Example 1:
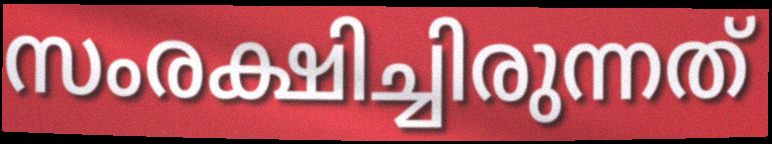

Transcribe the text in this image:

സംരക്ഷിച്ചിരുന്നത്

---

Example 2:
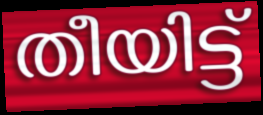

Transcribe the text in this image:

തീയിട്ട്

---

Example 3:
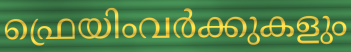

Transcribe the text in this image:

ഫ്രെയിംവർക്കുകളും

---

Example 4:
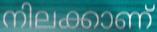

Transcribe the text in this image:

നിലക്കാണ്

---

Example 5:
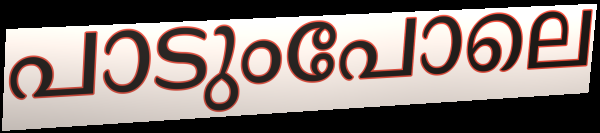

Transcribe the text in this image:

പാടുംപോലെ